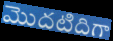
మొదటిదిగా